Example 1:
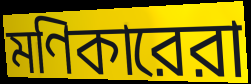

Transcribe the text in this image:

মণিকারেরা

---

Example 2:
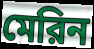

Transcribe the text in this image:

মেরিন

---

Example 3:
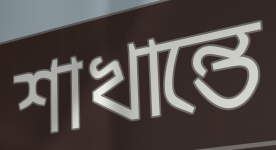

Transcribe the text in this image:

শাখান্তে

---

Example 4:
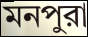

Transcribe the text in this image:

মনপুরা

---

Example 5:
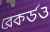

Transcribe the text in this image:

রেকর্ডও